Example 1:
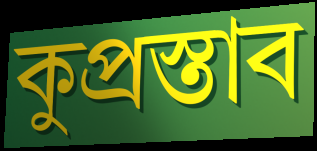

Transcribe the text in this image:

কুপ্রস্তাব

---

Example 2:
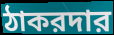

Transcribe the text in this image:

ঠাকরদার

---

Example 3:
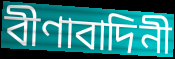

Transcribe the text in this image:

বীণাবাদিনী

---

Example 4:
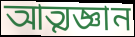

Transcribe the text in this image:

আত্মজ্ঞান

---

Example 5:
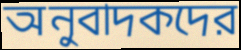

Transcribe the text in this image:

অনুবাদকদের